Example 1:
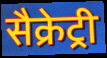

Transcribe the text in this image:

सैक्रेट्री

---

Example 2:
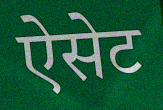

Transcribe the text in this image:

ऐसेट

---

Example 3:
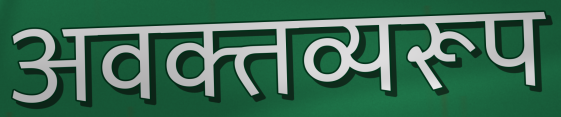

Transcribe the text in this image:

अवक्तव्यरूप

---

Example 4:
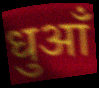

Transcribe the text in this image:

धुआँ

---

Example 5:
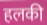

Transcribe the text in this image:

हलकी